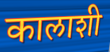
कालाशी